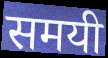
समयी